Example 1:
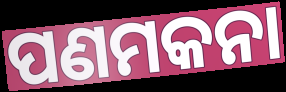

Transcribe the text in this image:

ପଣମକନା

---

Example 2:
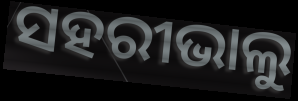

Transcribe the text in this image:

ସହରୀଭାଲୁ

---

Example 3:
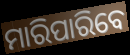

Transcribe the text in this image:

ମାରିପାରିବେ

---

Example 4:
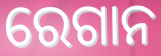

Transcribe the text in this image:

ରେଗାନ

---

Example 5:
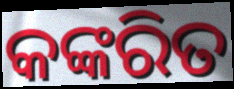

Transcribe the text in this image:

କଙ୍କରିତ